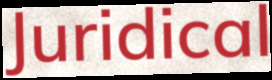
Juridical